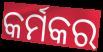
କର୍ମକର